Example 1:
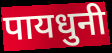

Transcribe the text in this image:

पायधुनी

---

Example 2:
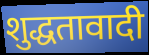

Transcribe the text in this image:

शुद्धतावादी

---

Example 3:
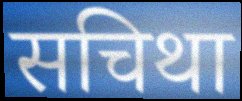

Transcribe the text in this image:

सचिथा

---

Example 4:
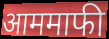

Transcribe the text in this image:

आममाफी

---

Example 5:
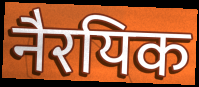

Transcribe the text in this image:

नैरयिक